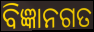
ବିଜ୍ଞାନଗତ